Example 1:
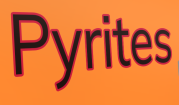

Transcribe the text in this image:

Pyrites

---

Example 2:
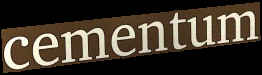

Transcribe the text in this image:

cementum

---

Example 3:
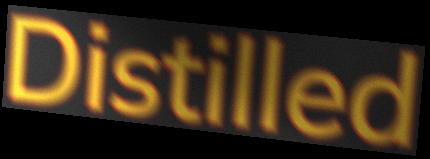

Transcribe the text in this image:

Distilled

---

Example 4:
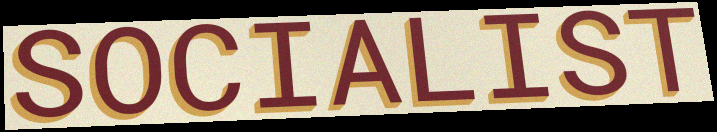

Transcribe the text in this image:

SOCIALIST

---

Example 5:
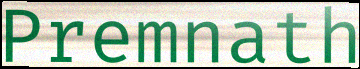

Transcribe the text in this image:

Premnath